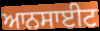
ਆਨਸਾਈਟ